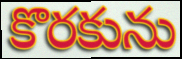
కొరకును